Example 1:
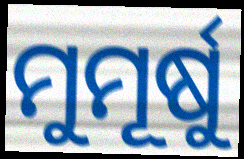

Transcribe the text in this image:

ମୁମୂର୍ଷୁ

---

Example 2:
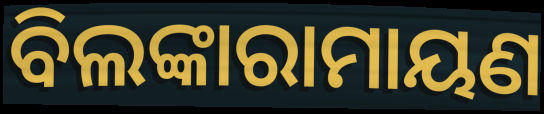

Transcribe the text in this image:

ବିଲଙ୍କାରାମାୟଣ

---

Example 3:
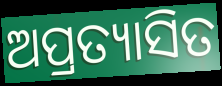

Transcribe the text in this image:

ଅପ୍ରତ୍ୟାସିତ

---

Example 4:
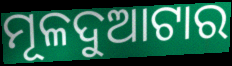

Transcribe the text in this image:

ମୂଳଦୁଆଟାର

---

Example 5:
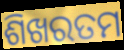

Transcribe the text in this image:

ଶିଖରତମ